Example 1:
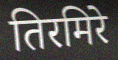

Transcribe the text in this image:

तिरमिरे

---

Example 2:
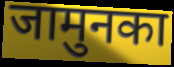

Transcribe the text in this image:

जामुनका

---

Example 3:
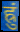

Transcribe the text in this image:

ह्रुं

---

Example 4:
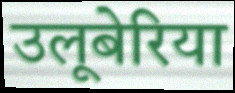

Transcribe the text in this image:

उलूबेरिया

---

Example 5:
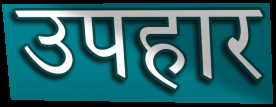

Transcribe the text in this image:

उपहार